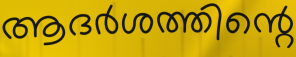
ആദർശത്തിന്റെ